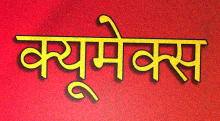
क्यूमेक्स